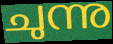
ചുന്നു